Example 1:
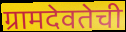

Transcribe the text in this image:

ग्रामदेवतेची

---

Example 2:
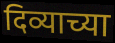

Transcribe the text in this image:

दिव्याच्या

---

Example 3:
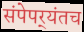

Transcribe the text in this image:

संपेपर्यंतच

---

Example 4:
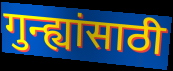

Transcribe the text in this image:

गुन्ह्यांसाठी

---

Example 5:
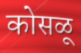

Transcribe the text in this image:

कोसळू